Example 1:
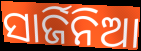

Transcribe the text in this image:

ସାର୍ଜିନିଆ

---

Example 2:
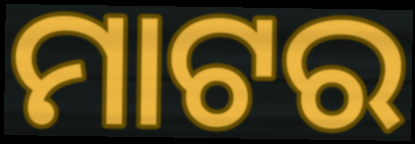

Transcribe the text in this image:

ମାଟର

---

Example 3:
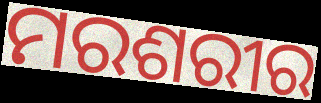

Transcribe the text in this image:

ମରଶରୀର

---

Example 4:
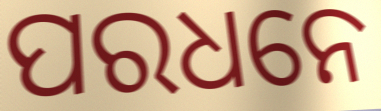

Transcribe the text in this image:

ପରଧନେ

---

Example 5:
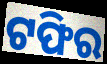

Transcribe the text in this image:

ଟଫିର